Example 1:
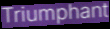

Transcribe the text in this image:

Triumphant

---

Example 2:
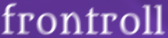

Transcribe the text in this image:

frontroll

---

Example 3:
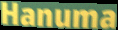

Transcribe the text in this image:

Hanuma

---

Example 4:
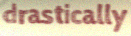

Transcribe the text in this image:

drastically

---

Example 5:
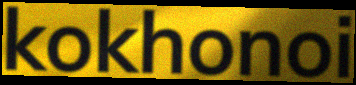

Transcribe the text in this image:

kokhonoi